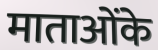
माताओंके